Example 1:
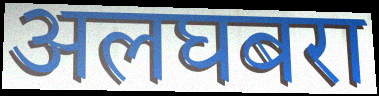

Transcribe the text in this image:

अलघबरा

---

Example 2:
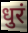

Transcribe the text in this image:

धुरं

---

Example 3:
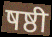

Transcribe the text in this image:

षष्ठी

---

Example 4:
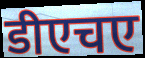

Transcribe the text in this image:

डीएचए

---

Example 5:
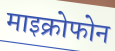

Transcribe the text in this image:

माइक्रोफोन